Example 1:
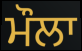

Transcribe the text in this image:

ਮੌਲਾ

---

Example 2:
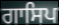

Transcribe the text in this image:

ਗਾਸਿਪ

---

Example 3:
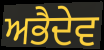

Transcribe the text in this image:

ਅਭੈਦੇਵ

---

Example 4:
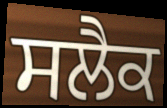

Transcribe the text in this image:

ਸਲੈਕ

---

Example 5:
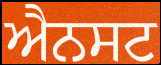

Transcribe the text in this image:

ਐਨਸਟ